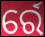
ର୍ରେ